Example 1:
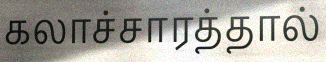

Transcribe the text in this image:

கலாச்சாரத்தால்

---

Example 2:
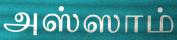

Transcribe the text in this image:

அஸ்ஸாம்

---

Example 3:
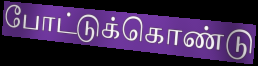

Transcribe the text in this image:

போட்டுக்கொண்டு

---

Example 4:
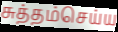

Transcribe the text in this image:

சுத்தம்செய்ய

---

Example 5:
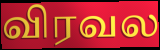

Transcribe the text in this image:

விரவல